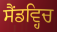
ਸੈਂਡਵ੍ਹਿਚ